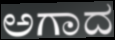
ಅಗಾದ